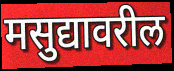
मसुद्यावरील